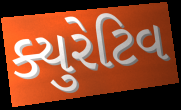
ક્યુરેટિવ